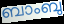
ബാംബു